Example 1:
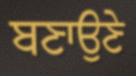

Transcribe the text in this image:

ਬਣਾਉਣੇ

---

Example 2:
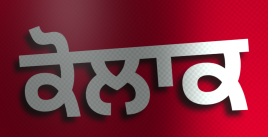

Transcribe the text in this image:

ਕੋਲਾਕ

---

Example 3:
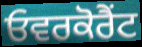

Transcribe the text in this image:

ਓਵਰਕੋਰੈਂਟ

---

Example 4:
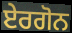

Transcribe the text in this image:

ਏਰਗੋਨ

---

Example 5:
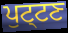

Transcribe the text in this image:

ਪੁਟ੍ਟਣ